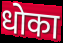
धोका